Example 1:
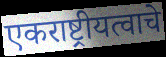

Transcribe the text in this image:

एकराष्ट्रीयत्वाचे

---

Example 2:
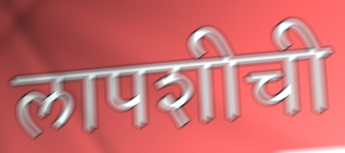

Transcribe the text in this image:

लापशीची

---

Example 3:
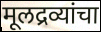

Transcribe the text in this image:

मूलद्रव्यांचा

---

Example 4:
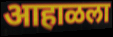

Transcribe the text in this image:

आहाळला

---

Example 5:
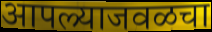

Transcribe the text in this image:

आपल्याजवळचा